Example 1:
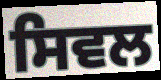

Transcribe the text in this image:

ਸਿਵਲ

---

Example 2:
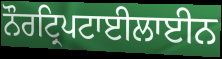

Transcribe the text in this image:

ਨੌਰਟ੍ਰਿਪਟਾਈਲਾਈਨ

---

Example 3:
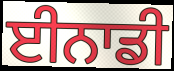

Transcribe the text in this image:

ਈਨਾਡੀ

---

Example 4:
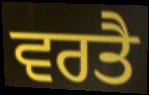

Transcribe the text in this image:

ਵਰਤੈ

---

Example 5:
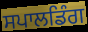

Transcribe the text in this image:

ਸਪਾਲਡਿੰਗ